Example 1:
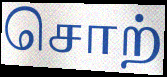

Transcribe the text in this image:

சொற்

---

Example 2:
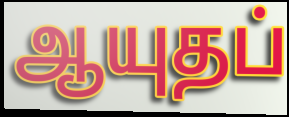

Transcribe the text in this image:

ஆயுதப்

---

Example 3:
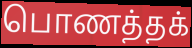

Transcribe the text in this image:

பொணத்தக்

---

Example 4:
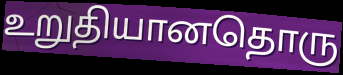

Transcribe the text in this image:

உறுதியானதொரு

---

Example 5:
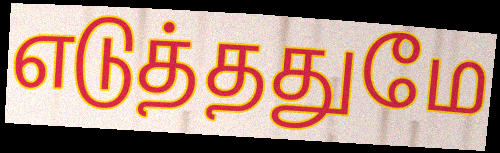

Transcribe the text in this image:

எடுத்ததுமே